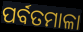
ପର୍ବତମାଳା